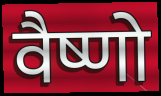
वैष्णो